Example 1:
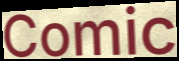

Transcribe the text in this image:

Comic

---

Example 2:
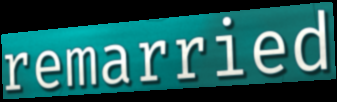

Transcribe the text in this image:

remarried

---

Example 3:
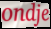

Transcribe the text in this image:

ondje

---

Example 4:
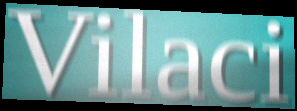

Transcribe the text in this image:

Vilaci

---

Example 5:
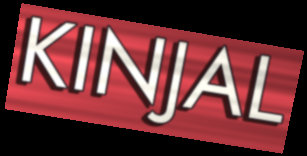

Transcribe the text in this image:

KINJAL